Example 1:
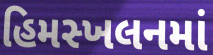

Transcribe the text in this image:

હિમસ્ખલનમાં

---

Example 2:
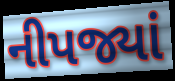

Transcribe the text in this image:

નીપજ્યાં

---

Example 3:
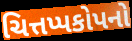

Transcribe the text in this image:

ચિત્તપ્પકોપનો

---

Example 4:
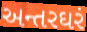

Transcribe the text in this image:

અન્તરઘરં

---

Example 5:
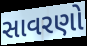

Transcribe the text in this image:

સાવરણો